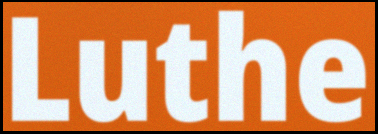
Luthe